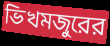
ভিখমজুরের